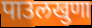
पाउलखुणा